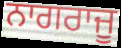
ਨਾਗਰਾਜੂ